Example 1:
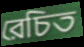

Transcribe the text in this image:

রেচিত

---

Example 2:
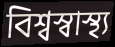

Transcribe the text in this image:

বিশ্বস্বাস্থ্য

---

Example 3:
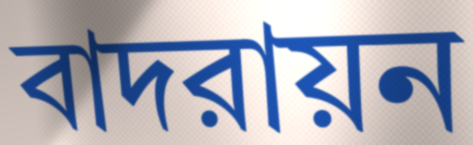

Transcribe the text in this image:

বাদরায়ন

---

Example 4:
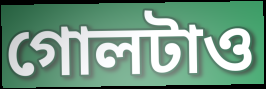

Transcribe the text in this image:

গোলটাও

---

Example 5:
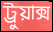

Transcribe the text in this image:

ট্রুয়াক্স